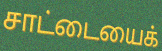
சாட்டையைக்